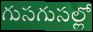
గుసగుసల్లో